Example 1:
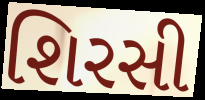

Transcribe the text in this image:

શિરસી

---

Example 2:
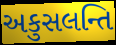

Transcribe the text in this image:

અકુસલન્તિ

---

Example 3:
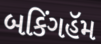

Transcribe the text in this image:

બકિંગહૅમ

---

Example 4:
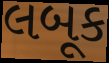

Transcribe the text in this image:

લબૂક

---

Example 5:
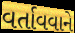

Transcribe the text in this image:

વર્તાવવાને